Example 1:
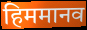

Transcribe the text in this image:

हिममानव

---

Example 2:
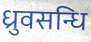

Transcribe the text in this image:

ध्रुवसन्धि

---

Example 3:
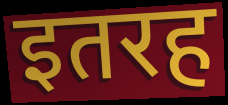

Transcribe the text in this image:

इतरह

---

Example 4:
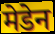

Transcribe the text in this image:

मेडेन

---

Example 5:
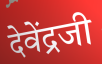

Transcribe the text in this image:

देवेंद्रजी